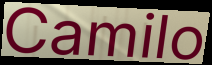
Camilo